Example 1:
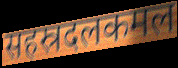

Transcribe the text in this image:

सहस्रदलकमल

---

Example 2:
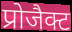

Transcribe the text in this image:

प्रोजैक्ट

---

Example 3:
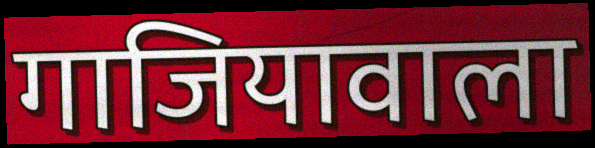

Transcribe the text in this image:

गाजियावाला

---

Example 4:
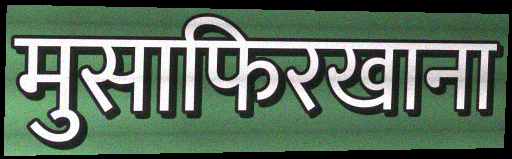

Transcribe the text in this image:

मुसाफिरखाना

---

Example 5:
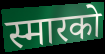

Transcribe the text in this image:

स्मारको